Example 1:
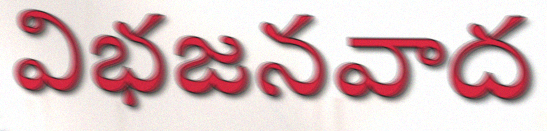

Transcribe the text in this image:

విభజనవాద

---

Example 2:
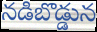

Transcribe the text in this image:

నడిబొడ్డున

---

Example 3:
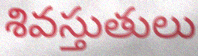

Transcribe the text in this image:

శివస్తుతులు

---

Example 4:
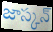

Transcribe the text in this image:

జాస్కన్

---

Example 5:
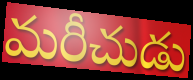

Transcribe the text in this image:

మరీచుడు